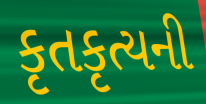
કૃતકૃત્યની